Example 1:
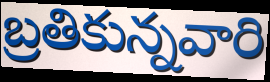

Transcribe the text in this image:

బ్రతికున్నవారి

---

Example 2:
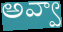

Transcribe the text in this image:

అవ్వా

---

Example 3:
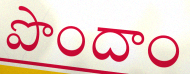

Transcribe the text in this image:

పొందాం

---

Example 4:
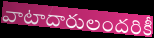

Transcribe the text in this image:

వాటాదారులందరికీ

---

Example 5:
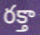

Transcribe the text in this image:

రక్తా